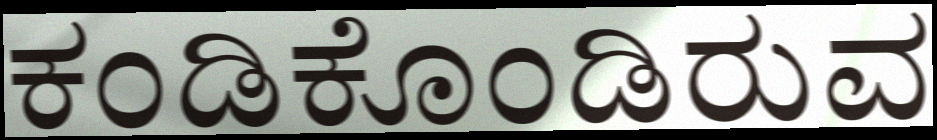
ಕಂಡಿಕೊಂಡಿರುವ